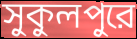
সুকুলপুরে